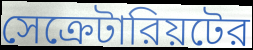
সেক্রেটারিয়টের